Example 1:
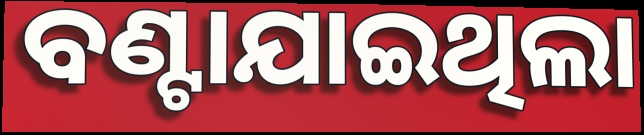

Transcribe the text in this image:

ବଣ୍ଟାଯାଇଥିଲା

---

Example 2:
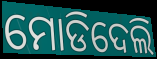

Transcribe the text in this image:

ମୋଡିଦେଲି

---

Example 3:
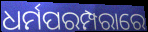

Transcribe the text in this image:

ଧର୍ମପରମ୍ପରାରେ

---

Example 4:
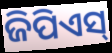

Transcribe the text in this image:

ଜିପିଏସ୍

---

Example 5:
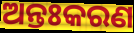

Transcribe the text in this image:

ଅନ୍ତଃକରଣ